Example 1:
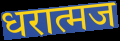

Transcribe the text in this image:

धरात्मज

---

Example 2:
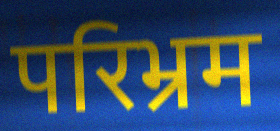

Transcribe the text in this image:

परिभ्रम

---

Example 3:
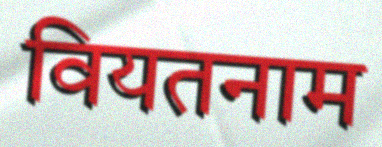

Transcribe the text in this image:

वियतनाम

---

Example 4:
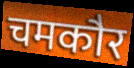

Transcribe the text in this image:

चमकौर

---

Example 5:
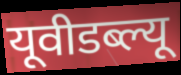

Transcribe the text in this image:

यूवीडब्ल्यू